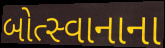
બોત્સ્વાનાના